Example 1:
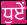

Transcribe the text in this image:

ਧੁਏਂ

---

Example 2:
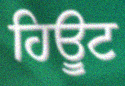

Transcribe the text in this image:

ਹਿਊਟ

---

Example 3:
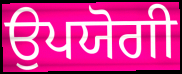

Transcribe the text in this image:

ਉਪਯੋਗੀ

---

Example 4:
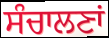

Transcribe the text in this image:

ਸੰਚਾਲਣਾਂ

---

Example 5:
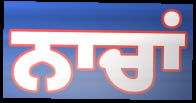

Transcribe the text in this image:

ਨਾਚਾਂ